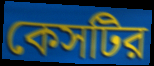
কেসটির